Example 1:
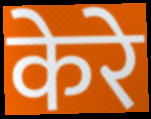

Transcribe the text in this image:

केरे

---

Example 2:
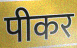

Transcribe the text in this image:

पीकर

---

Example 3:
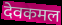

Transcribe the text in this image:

देवकमल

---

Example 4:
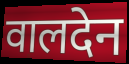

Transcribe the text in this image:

वालदेन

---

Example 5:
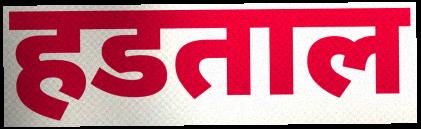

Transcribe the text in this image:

हडताल